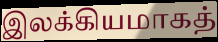
இலக்கியமாகத்